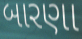
બારણા